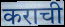
कराची